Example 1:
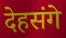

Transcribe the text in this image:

देहसंगे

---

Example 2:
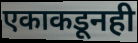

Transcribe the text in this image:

एकाकडूनही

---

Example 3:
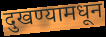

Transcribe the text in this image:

दुखण्यामधून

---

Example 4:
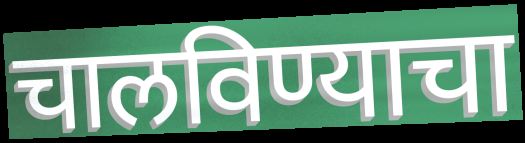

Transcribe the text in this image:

चालविण्याचा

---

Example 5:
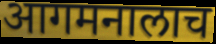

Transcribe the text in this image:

आगमनालाच